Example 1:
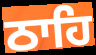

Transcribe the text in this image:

ਠਾਹਿ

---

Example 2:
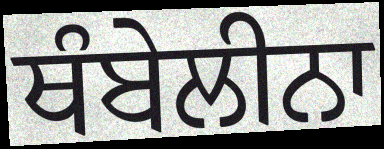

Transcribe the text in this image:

ਥੰਬੇਲੀਨਾ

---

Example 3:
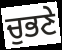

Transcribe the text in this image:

ਚੁਭਣੇ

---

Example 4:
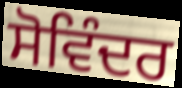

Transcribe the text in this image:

ਸੋਵਿੰਦਰ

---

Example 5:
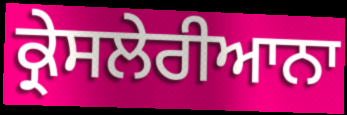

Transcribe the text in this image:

ਕ੍ਰੇਸਲੇਰੀਆਨਾ